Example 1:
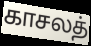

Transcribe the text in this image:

காசலத்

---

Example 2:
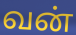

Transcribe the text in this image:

வன்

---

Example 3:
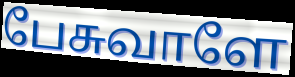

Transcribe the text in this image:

பேசுவாளே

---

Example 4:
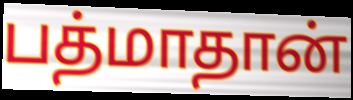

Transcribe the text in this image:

பத்மாதான்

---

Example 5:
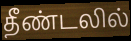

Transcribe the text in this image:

தீண்டலில்